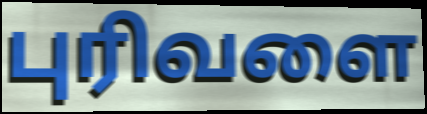
புரிவளை